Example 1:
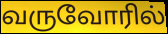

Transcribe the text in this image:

வருவோரில்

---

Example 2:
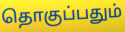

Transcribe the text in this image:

தொகுப்பதும்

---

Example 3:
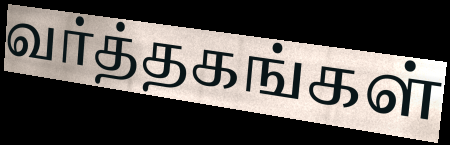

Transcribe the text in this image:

வர்த்தகங்கள்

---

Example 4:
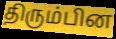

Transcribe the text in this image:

திரும்பின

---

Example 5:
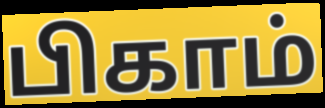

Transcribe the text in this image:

பிகாம்